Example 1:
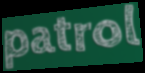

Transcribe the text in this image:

patrol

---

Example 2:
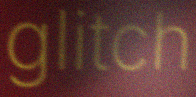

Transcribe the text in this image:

glitch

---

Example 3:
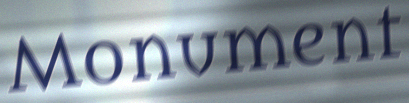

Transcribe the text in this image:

Monument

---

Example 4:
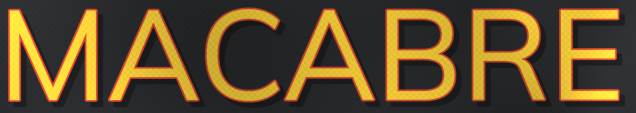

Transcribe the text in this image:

MACABRE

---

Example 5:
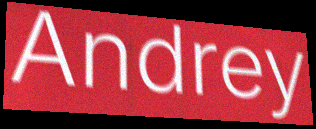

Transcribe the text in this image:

Andrey